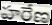
హరేణ